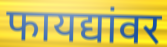
फायद्यांवर